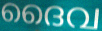
ദൈവ